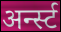
अर्न्स्ट